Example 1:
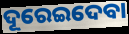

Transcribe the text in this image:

ଦୂରେଇଦେବା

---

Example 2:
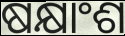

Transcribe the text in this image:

ଷକ୍ଷାଂଶ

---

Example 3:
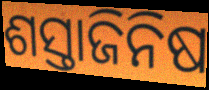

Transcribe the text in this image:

ଶସ୍ତାଜିନିଷ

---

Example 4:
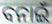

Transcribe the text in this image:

ବନାଇଁ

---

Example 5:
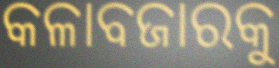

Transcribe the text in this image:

କଳାବଜାରକୁ